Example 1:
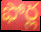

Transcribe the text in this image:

ఫోర్ల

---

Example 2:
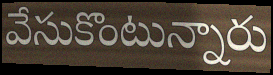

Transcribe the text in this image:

వేసుకొంటున్నారు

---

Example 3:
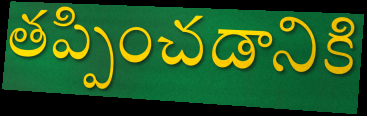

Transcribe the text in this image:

తప్పించడానికి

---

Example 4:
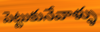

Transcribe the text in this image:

పెట్టుకునేవాళ్ళు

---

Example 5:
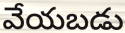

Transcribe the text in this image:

వేయబడు